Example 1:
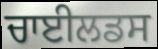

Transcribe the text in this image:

ਚਾਈਲਡਸ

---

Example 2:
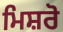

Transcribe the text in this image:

ਮਿਸ਼ਰੋ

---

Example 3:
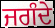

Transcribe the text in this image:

ਜਗੰਦੇ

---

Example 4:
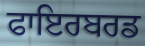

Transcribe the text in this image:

ਫਾਇਰਬਰਡ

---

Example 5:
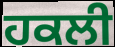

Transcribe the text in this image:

ਹਕਲੀ